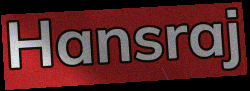
Hansraj